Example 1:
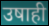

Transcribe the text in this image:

उषाही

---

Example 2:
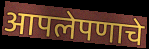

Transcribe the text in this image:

आपलेपणाचे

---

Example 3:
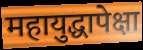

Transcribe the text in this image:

महायुद्धापेक्षा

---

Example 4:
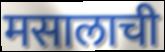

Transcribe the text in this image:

मसालाची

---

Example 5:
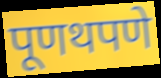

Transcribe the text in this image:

पूणथपणे